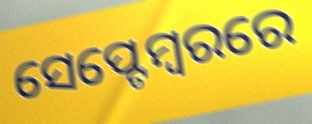
ସେପ୍ଟେମ୍ୱରରେ